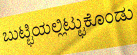
ಬುಟ್ಟಿಯಲ್ಲಿಟ್ಟುಕೊಂಡು